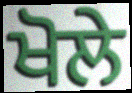
ਖੋਲੇ